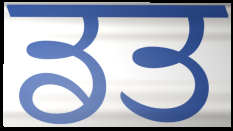
ਡਤ